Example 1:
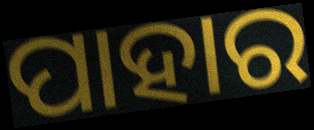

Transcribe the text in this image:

ପାହାର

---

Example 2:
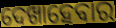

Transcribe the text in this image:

ଦେଖାହେବାର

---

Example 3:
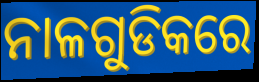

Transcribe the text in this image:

ନାଳଗୁଡିକରେ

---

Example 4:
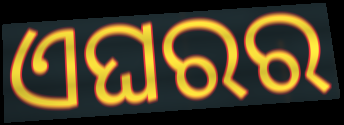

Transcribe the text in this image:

ଏଘରର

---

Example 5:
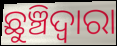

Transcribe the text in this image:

ଛୁଞ୍ଚିଦ୍ଵାରା